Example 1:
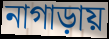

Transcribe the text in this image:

নাগাড়ায়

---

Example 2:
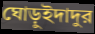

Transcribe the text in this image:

ঘোড়ুইদাদুর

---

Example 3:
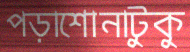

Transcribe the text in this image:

পড়াশোনাটুকু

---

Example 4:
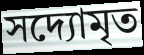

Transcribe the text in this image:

সদ্যোমৃত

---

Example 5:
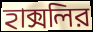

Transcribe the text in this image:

হাক্সলির